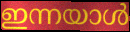
ഇന്നയാൾ